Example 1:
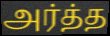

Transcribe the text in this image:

அர்த்த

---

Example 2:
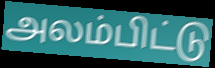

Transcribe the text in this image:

அலம்பிட்டு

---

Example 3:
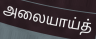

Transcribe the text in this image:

அலையாய்த்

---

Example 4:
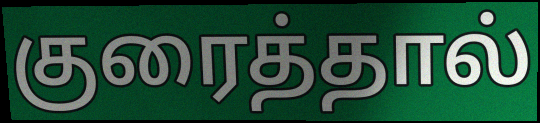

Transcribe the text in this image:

குரைத்தால்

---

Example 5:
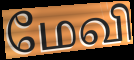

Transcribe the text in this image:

மேவி